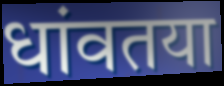
धांवतया